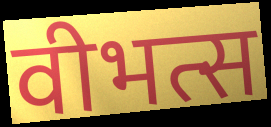
वीभत्स